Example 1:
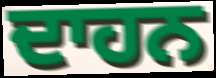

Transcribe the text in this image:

ਦਾਹਨ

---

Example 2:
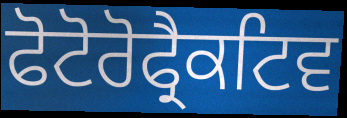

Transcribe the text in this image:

ਫੋਟੋਰੋਫ੍ਰੈਕਟਿਵ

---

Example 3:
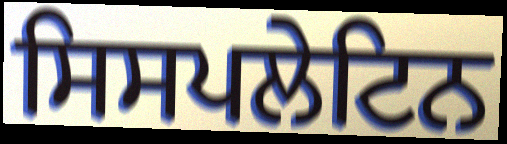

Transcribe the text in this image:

ਸਿਸਪਲੇਟਿਨ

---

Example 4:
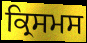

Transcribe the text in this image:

ਕ੍ਰਿਸਮਸ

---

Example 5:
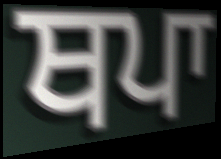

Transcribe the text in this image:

ਥਪਾ